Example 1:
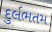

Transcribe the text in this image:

દુર્લભતમ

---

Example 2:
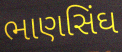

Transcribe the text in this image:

ભાણસિંઘ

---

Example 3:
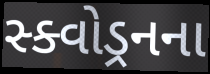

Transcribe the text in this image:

સ્ક્વોડ્રનના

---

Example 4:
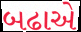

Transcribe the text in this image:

બઢાએ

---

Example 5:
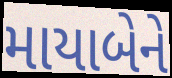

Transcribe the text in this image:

માયાબેને